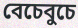
বেচেবুচে